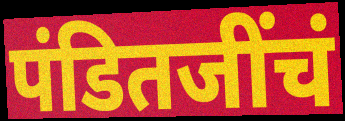
पंडितजींचं